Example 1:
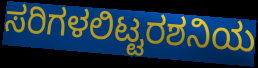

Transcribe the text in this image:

ಸರಿಗಳಲಿಟ್ಟರಶನಿಯ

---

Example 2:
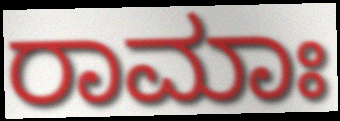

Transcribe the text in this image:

ರಾಮಾಃ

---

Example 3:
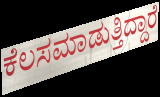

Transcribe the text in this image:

ಕೆಲಸಮಾಡುತ್ತಿದ್ದಾರೆ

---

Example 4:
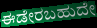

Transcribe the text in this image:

ಈಡೇರಬಹುದೇ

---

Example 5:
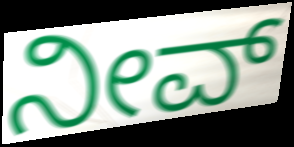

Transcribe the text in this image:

ನೀವ್